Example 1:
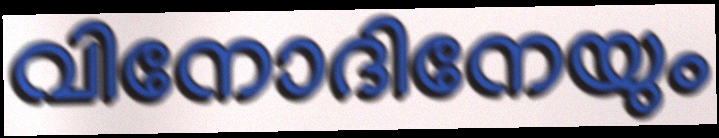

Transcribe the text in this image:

വിനോദിനേയും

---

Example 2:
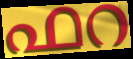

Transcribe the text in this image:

ഫറ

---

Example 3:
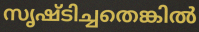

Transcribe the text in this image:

സൃഷ്ടിച്ചതെങ്കിൽ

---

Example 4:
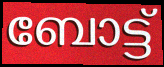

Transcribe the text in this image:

ബോട്ട്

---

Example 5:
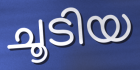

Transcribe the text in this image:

ചൂടിയ